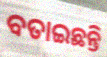
ବତାଇଛନ୍ତି